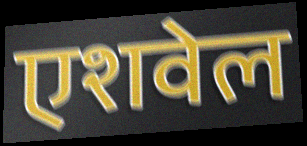
एशवेल